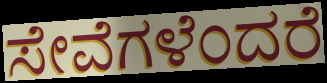
ಸೇವೆಗಳೆಂದರೆ